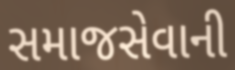
સમાજસેવાની